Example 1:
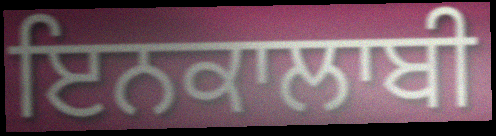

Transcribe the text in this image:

ਇਨਕਾਲਾਬੀ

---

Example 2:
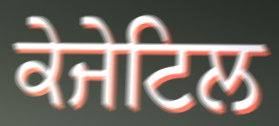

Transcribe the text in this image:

ਕੇਜੇਟਿਲ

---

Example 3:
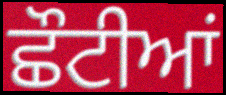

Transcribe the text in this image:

ਛੌਟੀਆਂ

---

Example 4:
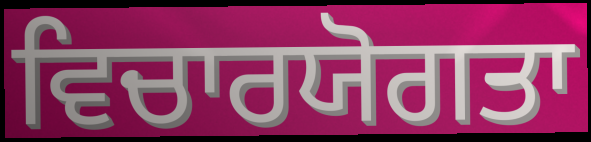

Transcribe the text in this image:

ਵਿਚਾਰਯੋਗਤਾ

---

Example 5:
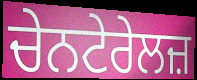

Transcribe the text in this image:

ਚੇਨਟੇਰੇਲਜ਼